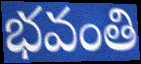
భవంతి